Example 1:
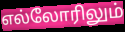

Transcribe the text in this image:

எல்லோரிலும்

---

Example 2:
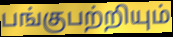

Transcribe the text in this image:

பங்குபற்றியும்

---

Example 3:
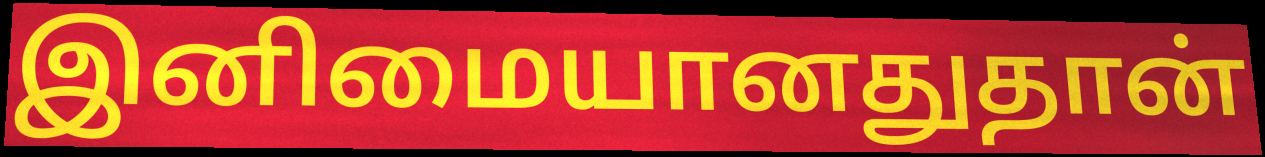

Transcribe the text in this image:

இனிமையானதுதான்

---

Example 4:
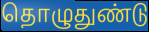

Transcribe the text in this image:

தொழுதுண்டு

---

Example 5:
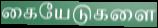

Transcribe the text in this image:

கையேடுகளை